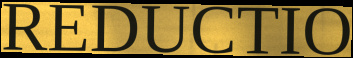
REDUCTIO